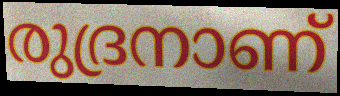
രുദ്രനാണ്